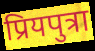
प्रियपुत्रा